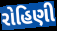
રોહિણી